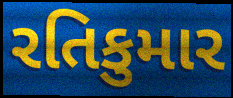
રતિકુમાર